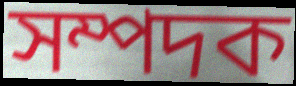
সম্পদক